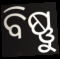
ବିଷ୍ଣୁ